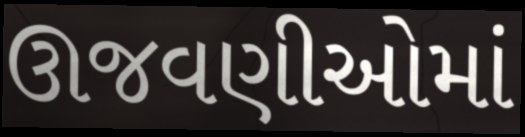
ઊજવણીઓમાં